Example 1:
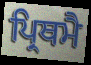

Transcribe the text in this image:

ਪ੍ਰਿਥਮੈ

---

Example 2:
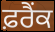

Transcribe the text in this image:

ਫ਼ਰੈਂਕ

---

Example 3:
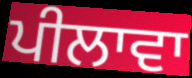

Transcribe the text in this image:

ਪੀਲਾਵਾ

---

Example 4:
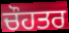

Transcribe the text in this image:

ਚੌਹਤਰ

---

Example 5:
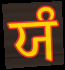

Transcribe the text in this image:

ਯੰ